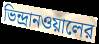
ভিন্দ্রানওয়ালের